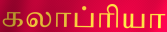
கலாப்ரியா